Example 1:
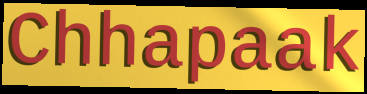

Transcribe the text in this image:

Chhapaak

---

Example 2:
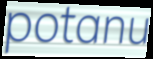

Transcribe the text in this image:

potanu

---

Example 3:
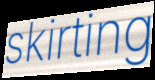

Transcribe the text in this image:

skirting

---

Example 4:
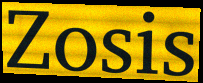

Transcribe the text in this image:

Zosis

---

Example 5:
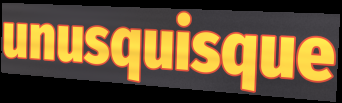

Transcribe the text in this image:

unusquisque